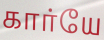
கார்யே